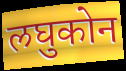
लघुकोन